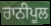
ਰਾਨੀਪੂਲ